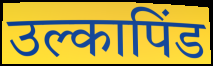
उल्‍कापिंड